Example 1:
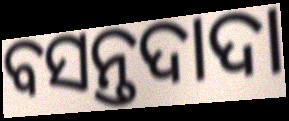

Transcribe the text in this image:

ବସନ୍ତଦାଦା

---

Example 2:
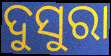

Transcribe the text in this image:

ଦୁସୁରା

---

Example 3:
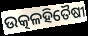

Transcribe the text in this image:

ଉତ୍କଳହିତୈଷୀ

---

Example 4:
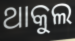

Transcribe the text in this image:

ଥାକୁଲ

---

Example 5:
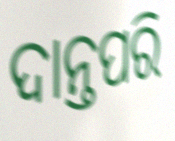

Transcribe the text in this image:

ଦାନ୍ତପରି